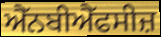
ਐੱਨਬੀਐੱਫਸੀਜ਼